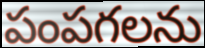
పంపగలను